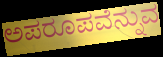
ಅಪರೂಪವೆನ್ನುವ